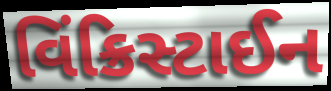
વિંક્રિસ્ટાઈન